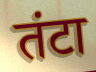
तंटा